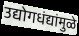
उद्योगधंद्यांमुळे